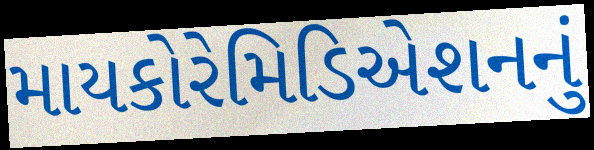
માયકોરેમિડિએશનનું